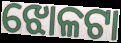
ଝୋଳଟା